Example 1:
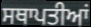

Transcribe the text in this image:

ਸਥਾਪਤੀਆਂ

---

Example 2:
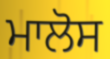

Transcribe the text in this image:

ਮਾਲੋਸ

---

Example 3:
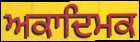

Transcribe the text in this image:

ਅਕਾਦਿਮਕ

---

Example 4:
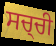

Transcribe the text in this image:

ਸਚ੍ਚੀ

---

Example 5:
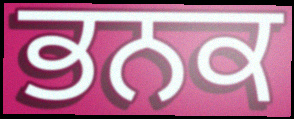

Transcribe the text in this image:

ਭਨਕ